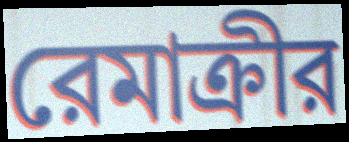
রেমাক্রীর